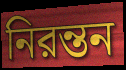
নিরন্তন